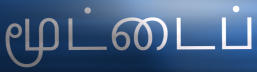
மூட்டைப்